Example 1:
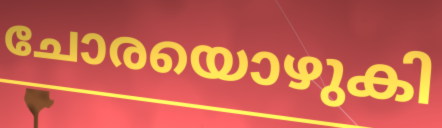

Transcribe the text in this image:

ചോരയൊഴുകി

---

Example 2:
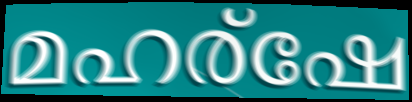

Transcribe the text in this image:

മഹര്ഷേ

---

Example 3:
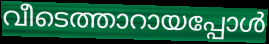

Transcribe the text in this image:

വീടെത്താറായപ്പോൾ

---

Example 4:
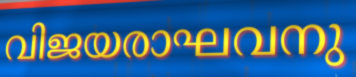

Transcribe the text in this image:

വിജയരാഘവനു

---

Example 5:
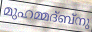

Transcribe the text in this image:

മുഹമ്മദ്ബ്നു